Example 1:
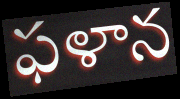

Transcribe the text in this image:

ఫళాన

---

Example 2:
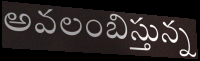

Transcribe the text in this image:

అవలంబిస్తున్న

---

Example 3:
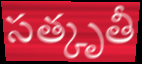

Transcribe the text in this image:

సత్కృతీ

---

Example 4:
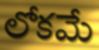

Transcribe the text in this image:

లోకమే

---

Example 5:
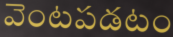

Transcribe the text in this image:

వెంటపడటం